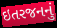
ઇતરજનનું